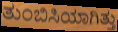
ತುಂಬಿಸಿಯಾಗಿತ್ತು